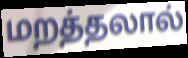
மறத்தலால்